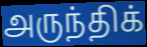
அருந்திக்